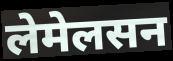
लेमेलसन